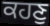
ਕਹਣੁ